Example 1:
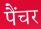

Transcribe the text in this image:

पैंचर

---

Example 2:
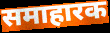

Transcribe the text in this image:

समाहारक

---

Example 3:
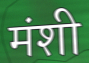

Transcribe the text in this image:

मंशी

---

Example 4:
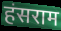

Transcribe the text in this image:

हंसराम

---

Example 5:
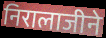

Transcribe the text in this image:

निरालाजीने